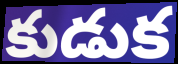
కుడుక